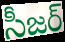
సీజర్